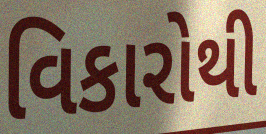
વિકારોથી